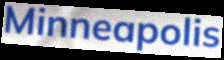
Minneapolis